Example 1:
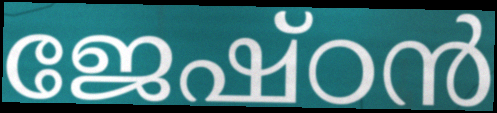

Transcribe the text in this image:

ജേഷ്ഠൻ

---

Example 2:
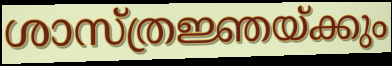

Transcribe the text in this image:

ശാസ്ത്രജ്ഞയ്ക്കും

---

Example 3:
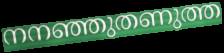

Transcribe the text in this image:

നനഞ്ഞുതണുത്ത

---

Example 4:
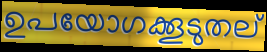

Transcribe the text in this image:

ഉപയോഗക്കൂടുതല്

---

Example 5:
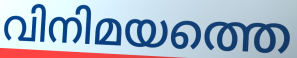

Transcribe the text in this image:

വിനിമയത്തെ